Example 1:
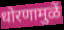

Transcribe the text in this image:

धोरणामुळें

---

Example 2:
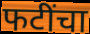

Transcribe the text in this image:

फटींचा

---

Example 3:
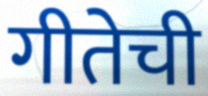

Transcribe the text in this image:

गीतेची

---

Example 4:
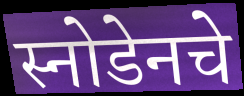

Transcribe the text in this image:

स्नोडेनचे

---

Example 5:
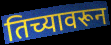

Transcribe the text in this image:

तिच्यावरून